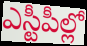
ఎస్టీపీల్లో